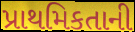
પ્રાથમિકતાની